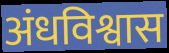
अंधविश्वास